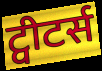
ट्वीटर्स